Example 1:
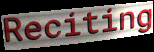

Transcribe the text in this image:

Reciting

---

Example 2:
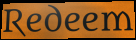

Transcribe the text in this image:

Redeem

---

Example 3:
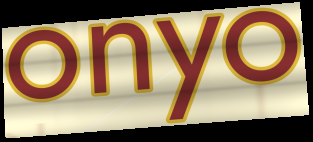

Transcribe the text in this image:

onyo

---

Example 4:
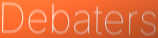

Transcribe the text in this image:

Debaters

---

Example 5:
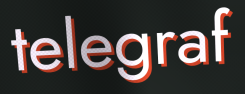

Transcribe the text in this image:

telegraf